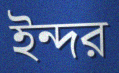
ইন্দর